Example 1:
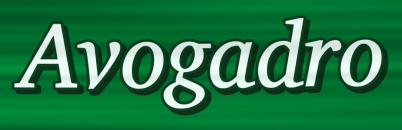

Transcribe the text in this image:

Avogadro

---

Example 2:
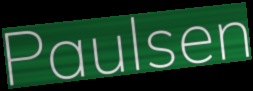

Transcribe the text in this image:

Paulsen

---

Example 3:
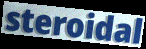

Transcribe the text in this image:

steroidal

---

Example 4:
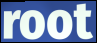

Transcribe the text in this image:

root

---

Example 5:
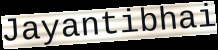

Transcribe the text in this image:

Jayantibhai